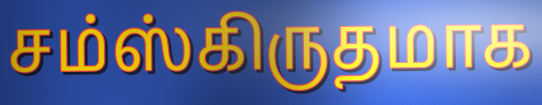
சம்ஸ்கிருதமாக